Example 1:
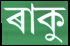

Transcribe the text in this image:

ৰাকু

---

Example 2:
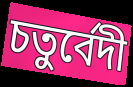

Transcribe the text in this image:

চতুৰ্বেদী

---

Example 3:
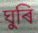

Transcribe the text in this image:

ঘুৰি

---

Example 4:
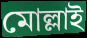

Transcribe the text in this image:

মোল্লাই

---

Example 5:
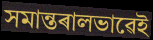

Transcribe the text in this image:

সমান্তৰালভাৱেই